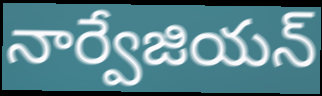
నార్వేజియన్